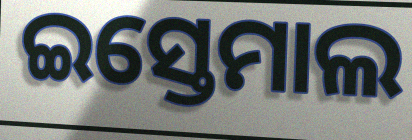
ଇସ୍ତେମାଲ